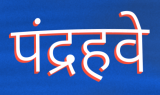
पंद्रहवे